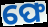
ଫେ